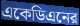
একেডিএনের